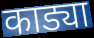
काड्या